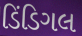
ડિંડિગલ